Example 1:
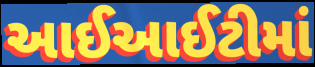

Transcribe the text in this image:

આઈઆઈટીમાં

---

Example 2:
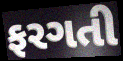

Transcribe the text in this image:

ફરગતી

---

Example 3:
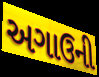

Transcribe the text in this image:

અગાઉની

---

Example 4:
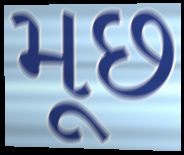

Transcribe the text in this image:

મૂછ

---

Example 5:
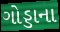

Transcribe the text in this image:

ગોડ્ડાના